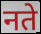
नते